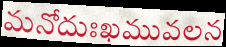
మనోదుఃఖమువలన